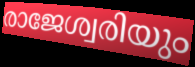
രാജേശ്വരിയും